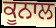
ਕੂਨਾਲ